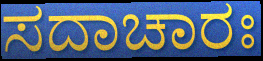
ಸದಾಚಾರಃ